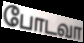
போடவா